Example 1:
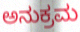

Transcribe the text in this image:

ಅನುಕ್ರಮ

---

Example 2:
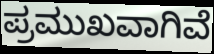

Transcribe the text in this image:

ಪ್ರಮುಖವಾಗಿವೆ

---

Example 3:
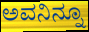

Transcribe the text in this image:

ಅವನಿನ್ನೂ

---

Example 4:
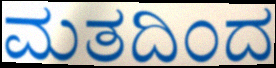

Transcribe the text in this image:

ಮತದಿಂದ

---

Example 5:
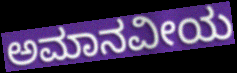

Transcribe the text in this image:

ಅಮಾನವೀಯ